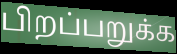
பிறப்பறுக்க